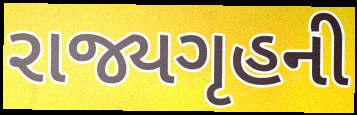
રાજ્યગૃહની